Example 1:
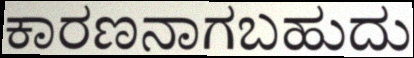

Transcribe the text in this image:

ಕಾರಣನಾಗಬಹುದು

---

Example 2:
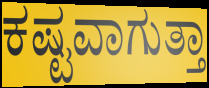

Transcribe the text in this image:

ಕಷ್ಟವಾಗುತ್ತಾ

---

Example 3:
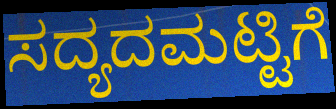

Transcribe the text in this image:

ಸದ್ಯದಮಟ್ಟಿಗೆ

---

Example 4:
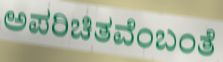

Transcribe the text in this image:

ಅಪರಿಚಿತವೆಂಬಂತೆ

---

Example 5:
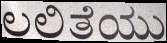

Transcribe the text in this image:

ಲಲಿತೆಯು